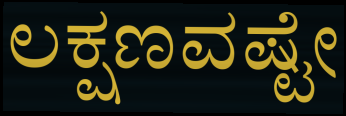
ಲಕ್ಷಣವಷ್ಟೇ